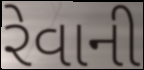
રેવાની